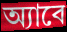
অ্যাবে